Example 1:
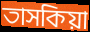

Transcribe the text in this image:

তাসকিয়া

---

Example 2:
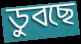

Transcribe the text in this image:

ডুবছে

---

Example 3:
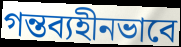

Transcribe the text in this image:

গন্তব্যহীনভাবে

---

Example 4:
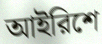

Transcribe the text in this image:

আইরিশে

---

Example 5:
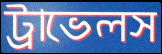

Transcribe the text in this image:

ট্রাভেলস